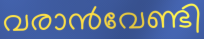
വരാൻവേണ്ടി